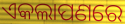
ଏକଲାପଣରେ